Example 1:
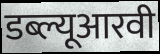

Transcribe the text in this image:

डब्ल्यूआरवी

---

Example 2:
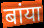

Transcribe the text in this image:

बांया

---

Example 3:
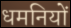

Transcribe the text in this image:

धमनियों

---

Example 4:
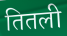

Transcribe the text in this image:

तितली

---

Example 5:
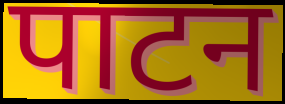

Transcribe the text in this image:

पाटन